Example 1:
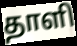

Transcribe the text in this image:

தாளி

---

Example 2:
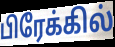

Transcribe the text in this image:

பிரேக்கில்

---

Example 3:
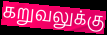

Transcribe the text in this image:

கறுவலுக்கு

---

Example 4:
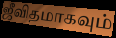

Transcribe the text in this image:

ஜீவிதமாகவும்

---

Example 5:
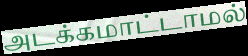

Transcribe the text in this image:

அடக்கமாட்டாமல்